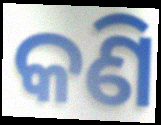
କଣି